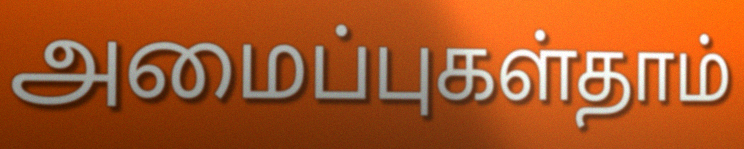
அமைப்புகள்தாம்